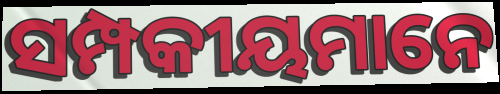
ସମ୍ପକୀୟମାନେ